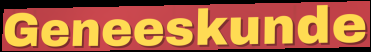
Geneeskunde